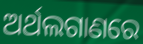
ଅର୍ଥଲଗାଣରେ